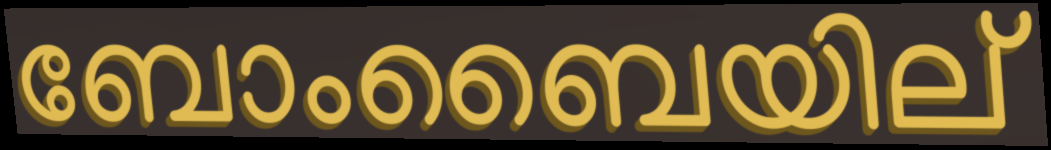
ബോംബൈയില്